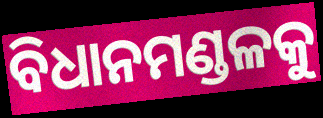
ବିଧାନମଣ୍ଡଳକୁ